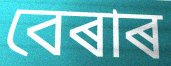
বেৰাৰ